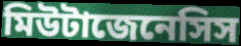
মিউটাজেনেসিস